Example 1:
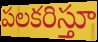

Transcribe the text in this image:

పలకరిస్తూ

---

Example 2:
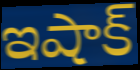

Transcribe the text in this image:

ఇషాక్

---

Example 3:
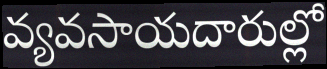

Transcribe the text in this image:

వ్యవసాయదారుల్లో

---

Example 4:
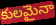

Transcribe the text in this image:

కులమైనా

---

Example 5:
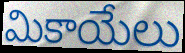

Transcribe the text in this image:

మికాయేలు